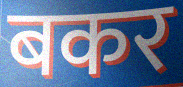
बकर